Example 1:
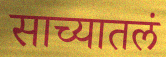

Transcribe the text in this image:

साच्यातलं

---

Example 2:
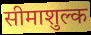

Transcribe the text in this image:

सीमाशुल्क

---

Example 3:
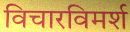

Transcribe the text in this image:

विचारविमर्श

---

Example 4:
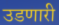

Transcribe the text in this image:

उडणारी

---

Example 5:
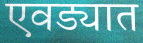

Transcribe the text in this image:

एवड्यात